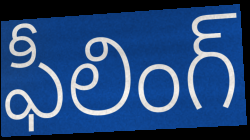
ఫీలింగ్